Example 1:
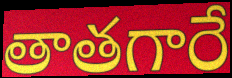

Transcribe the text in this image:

తాతగారే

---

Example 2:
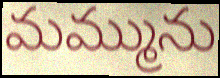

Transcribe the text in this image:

మమ్మును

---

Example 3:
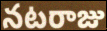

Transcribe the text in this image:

నటరాజు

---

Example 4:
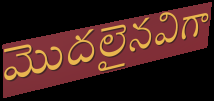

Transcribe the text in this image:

మొదలైనవిగా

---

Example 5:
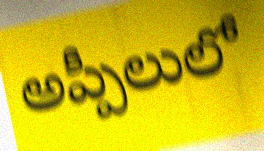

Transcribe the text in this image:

అప్పీలులో